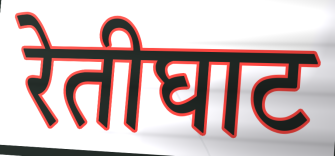
रेतीघाट